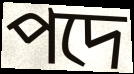
পদে